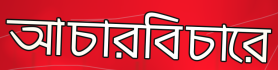
আচারবিচারে